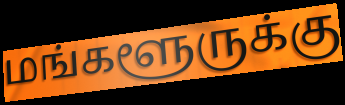
மங்களூருக்கு